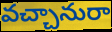
వచ్చానురా